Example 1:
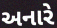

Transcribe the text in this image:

અનારે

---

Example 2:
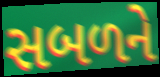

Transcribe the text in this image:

સબળને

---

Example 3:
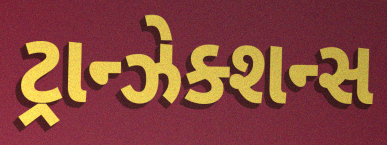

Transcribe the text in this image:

ટ્રાન્ઝેક્શન્સ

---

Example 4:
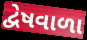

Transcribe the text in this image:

દ્વેષવાળા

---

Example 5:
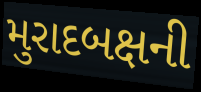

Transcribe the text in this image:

મુરાદબક્ષની